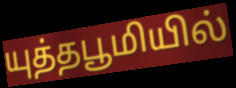
யுத்தபூமியில்